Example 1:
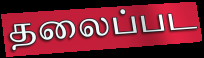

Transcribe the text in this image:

தலைப்பட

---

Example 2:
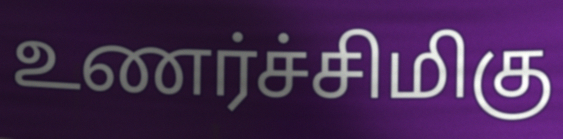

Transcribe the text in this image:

உணர்ச்சிமிகு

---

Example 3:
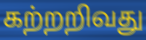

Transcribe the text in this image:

கற்றறிவது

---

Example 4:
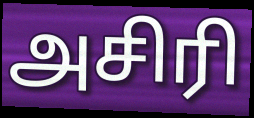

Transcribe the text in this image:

அசிரி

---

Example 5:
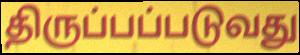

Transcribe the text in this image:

திருப்பப்படுவது